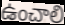
ఉంచాలి